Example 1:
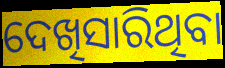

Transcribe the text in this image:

ଦେଖିସାରିଥିବା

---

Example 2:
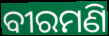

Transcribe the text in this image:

ବୀରମଣି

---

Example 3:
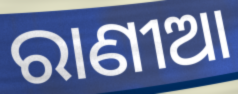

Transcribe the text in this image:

ରାଣୀଆ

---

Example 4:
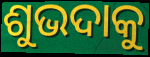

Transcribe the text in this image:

ଶୁଭଦାକୁ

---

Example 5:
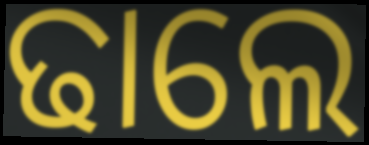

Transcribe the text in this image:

ଢାଲେ